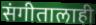
संगीतालाही